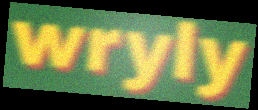
wryly